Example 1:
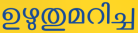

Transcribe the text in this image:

ഉഴുതുമറിച്ച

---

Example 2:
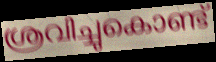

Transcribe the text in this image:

ശ്രവിച്ചുകൊണ്ട്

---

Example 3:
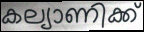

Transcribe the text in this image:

കല്യാണിക്ക്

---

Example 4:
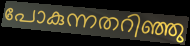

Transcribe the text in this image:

പോകുന്നതറിഞ്ഞു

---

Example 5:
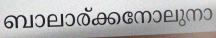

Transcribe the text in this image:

ബാലാര്ക്കനോലുനാ